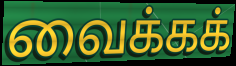
வைக்கக்